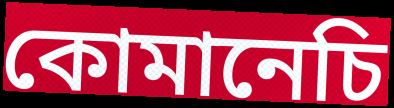
কোমানেচি